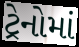
ટ્રેનોમાં